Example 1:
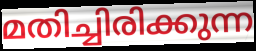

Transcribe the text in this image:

മതിച്ചിരിക്കുന്ന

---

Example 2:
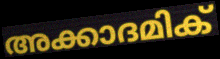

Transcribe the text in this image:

അക്കാദമിക്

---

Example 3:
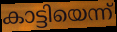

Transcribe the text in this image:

കാട്ടിയെന്ന്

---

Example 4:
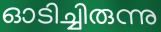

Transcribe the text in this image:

ഓടിച്ചിരുന്നു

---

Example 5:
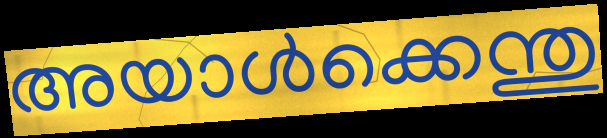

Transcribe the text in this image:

അയാൾക്കെന്തു